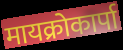
मायक्रोकार्पा